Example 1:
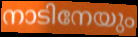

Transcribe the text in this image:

നാടിനേയും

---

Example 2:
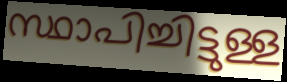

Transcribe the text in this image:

സ്ഥാപിച്ചിട്ടുള്ള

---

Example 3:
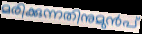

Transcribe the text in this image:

മരിക്കുന്നതിനുമുൻപ്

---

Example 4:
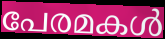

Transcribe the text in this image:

പേരമകൾ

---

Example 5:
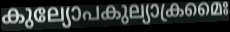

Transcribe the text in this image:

കുല്യോപകുല്യാക്രമൈഃ